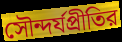
সৌন্দর্যপ্রীতির